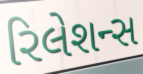
રિલેશન્સ